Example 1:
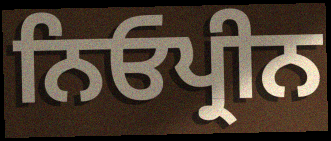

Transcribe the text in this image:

ਨਿਓਪ੍ਰੀਨ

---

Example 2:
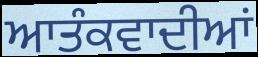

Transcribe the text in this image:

ਆਤੰਕਵਾਦੀਆਂ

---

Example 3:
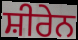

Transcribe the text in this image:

ਸ਼ੀਰੇਨ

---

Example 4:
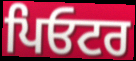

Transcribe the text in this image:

ਪਿਓਟਰ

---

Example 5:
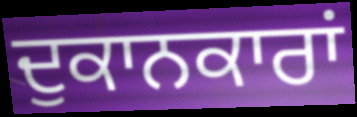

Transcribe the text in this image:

ਦੁਕਾਨਕਾਰਾਂ